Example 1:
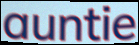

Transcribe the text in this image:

auntie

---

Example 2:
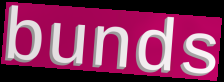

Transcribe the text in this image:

bunds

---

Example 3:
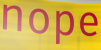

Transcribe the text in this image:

nope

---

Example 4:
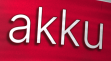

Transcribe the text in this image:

akku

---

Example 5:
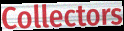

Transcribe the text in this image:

Collectors